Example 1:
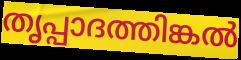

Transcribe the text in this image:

തൃപ്പാദത്തിങ്കൽ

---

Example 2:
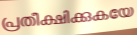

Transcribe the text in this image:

പ്രതീക്ഷിക്കുകയേ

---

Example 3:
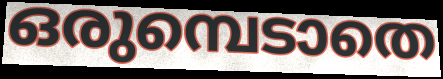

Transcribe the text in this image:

ഒരുമ്പെടാതെ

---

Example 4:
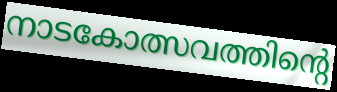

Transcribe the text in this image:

നാടകോത്സവത്തിന്റെ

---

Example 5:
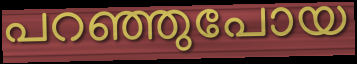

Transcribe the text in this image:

പറഞ്ഞുപോയ